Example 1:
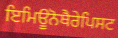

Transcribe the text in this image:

ਇਮਿਊਨੋਥੈਰੇਪਿਸਟ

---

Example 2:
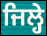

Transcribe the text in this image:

ਜਿਲ੍ਹੇ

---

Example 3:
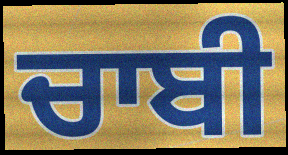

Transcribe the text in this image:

ਚਾਬੀ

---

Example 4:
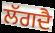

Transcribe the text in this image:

ਲੱਗਦੈ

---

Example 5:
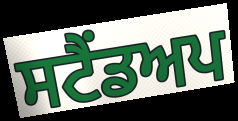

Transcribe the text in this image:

ਸਟੈਂਡਅਪ